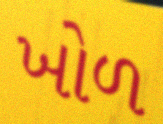
ખોળ